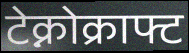
टेक्नोक्राफ्ट